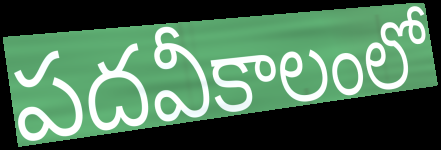
పదవీకాలంలో